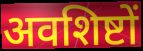
अवशिष्टों